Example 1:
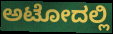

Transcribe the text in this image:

ಅಟೋದಲ್ಲಿ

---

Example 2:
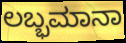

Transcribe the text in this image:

ಲಬ್ಭಮಾನಾ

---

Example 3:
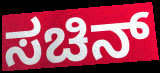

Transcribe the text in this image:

ಸಚಿನ್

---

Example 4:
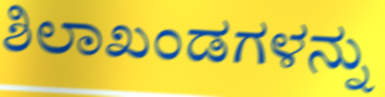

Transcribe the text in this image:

ಶಿಲಾಖಂಡಗಳನ್ನು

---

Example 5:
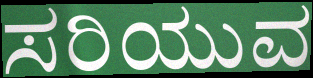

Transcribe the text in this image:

ಸರಿಯುವ